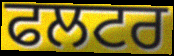
ਫਲਟਰ